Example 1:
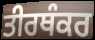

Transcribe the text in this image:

ਤੀਰਥੰਕਰ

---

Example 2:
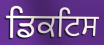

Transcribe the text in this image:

ਡਿਕਟਿਸ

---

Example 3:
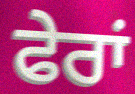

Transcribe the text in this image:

ਫੇਰਾਂ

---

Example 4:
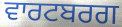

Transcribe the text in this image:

ਵਾਰਟਬਰਗ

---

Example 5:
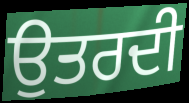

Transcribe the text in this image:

ਉਤਰਦੀ